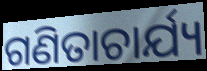
ଗଣିତାଚାର୍ଯ୍ୟ